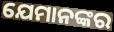
ଯେମାନଙ୍କର